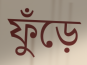
ফুঁড়ে